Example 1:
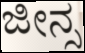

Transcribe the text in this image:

ಜೀನ್ಸ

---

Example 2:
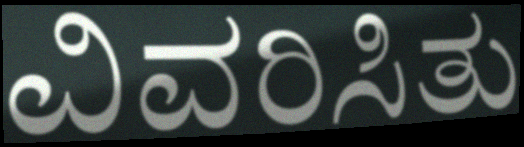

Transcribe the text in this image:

ವಿವರಿಸಿತು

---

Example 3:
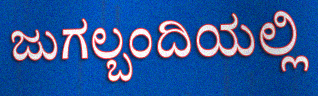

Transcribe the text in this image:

ಜುಗಲ್ಬಂದಿಯಲ್ಲಿ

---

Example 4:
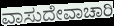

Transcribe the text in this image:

ವಾಸುದೇವಾಚಾರಿ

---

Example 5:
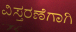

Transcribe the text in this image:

ವಿಸ್ತರಣೆಗಾಗಿ